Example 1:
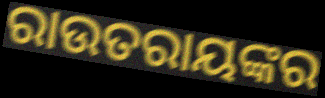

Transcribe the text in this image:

ରାଉତରାୟଙ୍କର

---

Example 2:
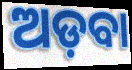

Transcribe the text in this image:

ଅଡ଼ବା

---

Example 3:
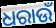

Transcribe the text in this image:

ଧରାଉଁ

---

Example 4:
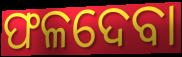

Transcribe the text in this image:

ଫଳଦେବା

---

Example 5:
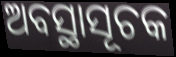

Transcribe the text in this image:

ଅବସ୍ଥାସୂଚକ